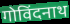
गोविंदनाथ